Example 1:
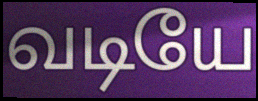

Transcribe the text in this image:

வடியே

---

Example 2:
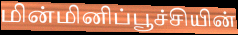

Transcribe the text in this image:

மின்மினிப்பூச்சியின்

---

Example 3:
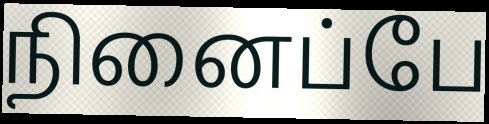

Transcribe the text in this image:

நினைப்பே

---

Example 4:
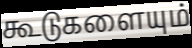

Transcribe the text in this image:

கூடுகளையும்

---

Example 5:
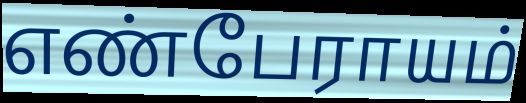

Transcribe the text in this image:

எண்பேராயம்